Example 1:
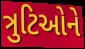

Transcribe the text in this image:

ત્રુટિઓને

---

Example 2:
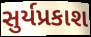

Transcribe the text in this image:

સુર્યપ્રકાશ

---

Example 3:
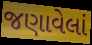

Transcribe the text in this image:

જણાવેલાં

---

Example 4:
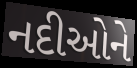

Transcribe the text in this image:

નદીઓને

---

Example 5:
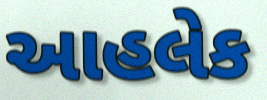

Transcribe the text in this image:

આહલેક